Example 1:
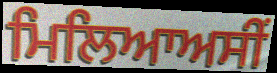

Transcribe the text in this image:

ਮਿਲਿਆਅਸੀਂ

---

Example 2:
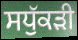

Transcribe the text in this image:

ਸਧੁੱਕੜੀ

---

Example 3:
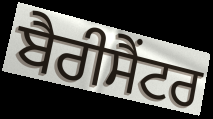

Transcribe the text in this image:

ਬੈਰੀਸੈਂਟਰ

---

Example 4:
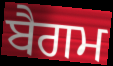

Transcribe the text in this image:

ਬੈਗਮ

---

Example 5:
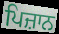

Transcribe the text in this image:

ਪਿਜ਼ਾਨ